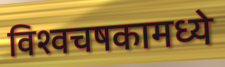
विश्वचषकामध्ये